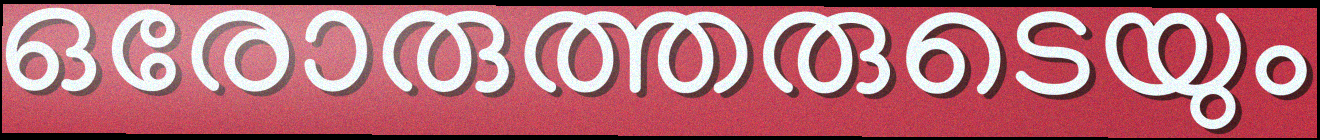
ഒരോരുത്തരുടെയും